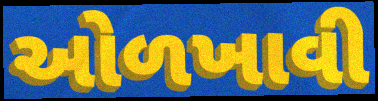
ઓળખાવી